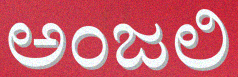
ಅಂಜಲಿ